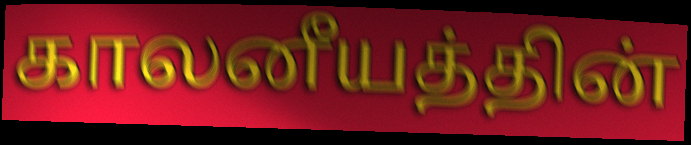
காலனீயத்தின்